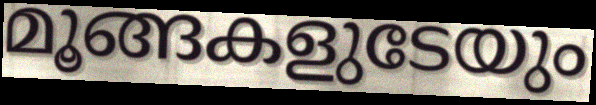
മൂങ്ങകളുടേയും